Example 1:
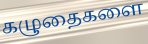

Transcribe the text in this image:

கழுதைகளை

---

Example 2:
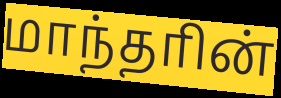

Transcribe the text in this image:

மாந்தரின்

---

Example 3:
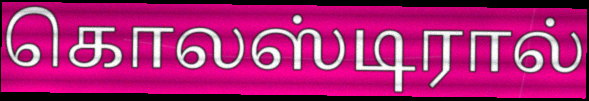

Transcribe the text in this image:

கொலஸ்டிரால்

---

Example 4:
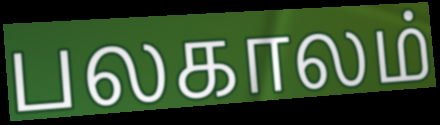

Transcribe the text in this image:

பலகாலம்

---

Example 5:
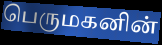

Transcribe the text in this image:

பெருமகனின்